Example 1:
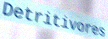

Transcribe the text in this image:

Detritivores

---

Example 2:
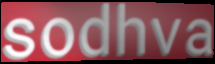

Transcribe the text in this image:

sodhva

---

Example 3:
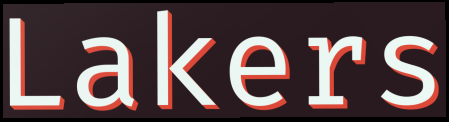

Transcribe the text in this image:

Lakers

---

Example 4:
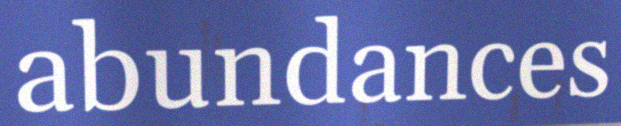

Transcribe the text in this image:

abundances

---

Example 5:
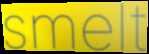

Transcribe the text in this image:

smelt